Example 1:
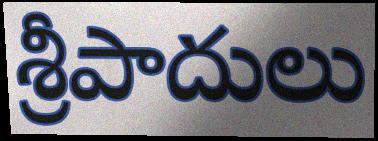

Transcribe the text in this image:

శ్రీపాదులు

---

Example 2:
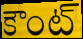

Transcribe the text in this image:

కౌంట్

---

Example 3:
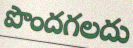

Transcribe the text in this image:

పొందగలదు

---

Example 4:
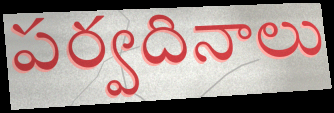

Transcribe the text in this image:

పర్వదినాలు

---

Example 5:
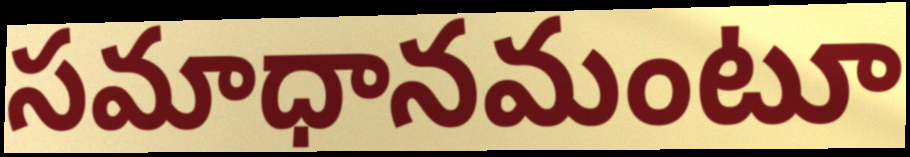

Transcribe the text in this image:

సమాధానమంటూ